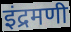
इंद्रमणी